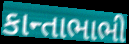
કાન્તાભાભી